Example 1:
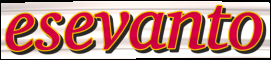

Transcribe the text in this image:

esevanto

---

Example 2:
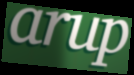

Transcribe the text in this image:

arup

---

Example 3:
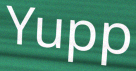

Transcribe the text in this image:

Yupp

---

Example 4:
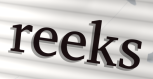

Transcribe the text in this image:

reeks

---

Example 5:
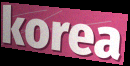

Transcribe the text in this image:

korea